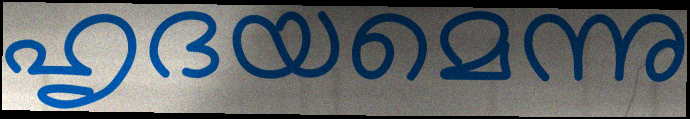
ഹൃദയമെന്നു